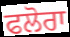
ਫਲੋਰਾ